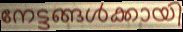
നേട്ടങ്ങൾക്കായി